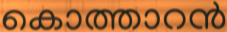
കൊത്താറൻ